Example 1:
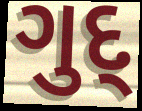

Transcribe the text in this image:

ગુદ્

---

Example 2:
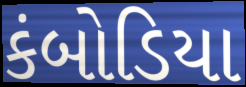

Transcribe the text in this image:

કંબોડિયા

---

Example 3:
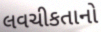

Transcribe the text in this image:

લવચીકતાનો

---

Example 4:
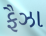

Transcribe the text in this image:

ફૈઝા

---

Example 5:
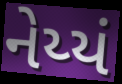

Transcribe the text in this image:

નેય્યં